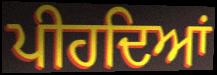
ਪੀਹਦਿਆਂ